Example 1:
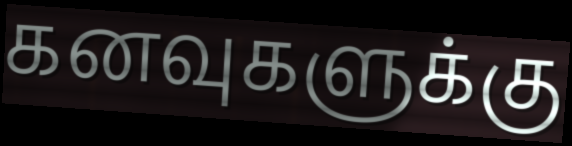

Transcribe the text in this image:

கனவுகளுக்கு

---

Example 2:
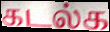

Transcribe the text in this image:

கடல்க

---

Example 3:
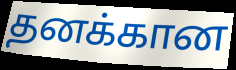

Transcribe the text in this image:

தனக்கான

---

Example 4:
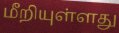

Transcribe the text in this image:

மீறியுள்ளது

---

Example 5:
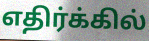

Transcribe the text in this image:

எதிர்க்கில்